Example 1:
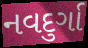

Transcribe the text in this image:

નવદુર્ગા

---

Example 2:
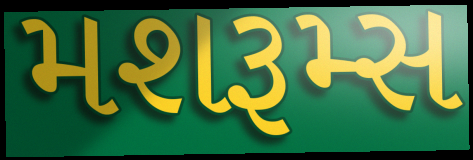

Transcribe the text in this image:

મશરૂમ્સ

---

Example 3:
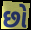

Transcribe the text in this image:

છો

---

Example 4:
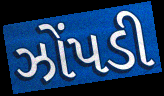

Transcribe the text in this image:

ઝોંપડી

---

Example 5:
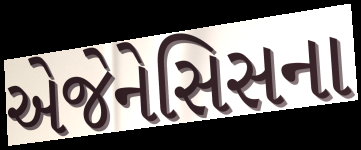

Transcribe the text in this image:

એજેનેસિસના